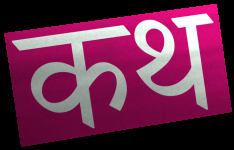
कथ